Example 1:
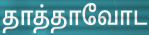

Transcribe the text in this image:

தாத்தாவோட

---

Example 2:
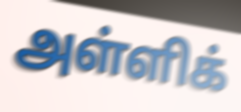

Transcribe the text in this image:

அள்ளிக்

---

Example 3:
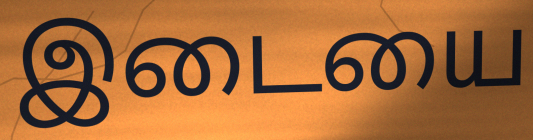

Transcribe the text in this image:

இடையை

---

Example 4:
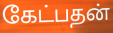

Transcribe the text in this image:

கேட்பதன்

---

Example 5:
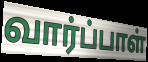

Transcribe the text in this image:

வார்ப்பாள்